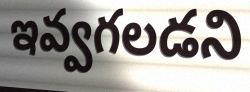
ఇవ్వగలడని